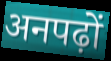
अनपढ़ों